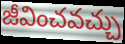
జీవించవచ్చు